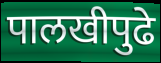
पालखीपुढे